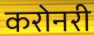
करोनरी